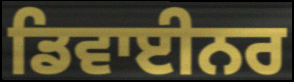
ਡਿਵਾਈਨਰ